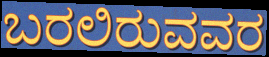
ಬರಲಿರುವವರ